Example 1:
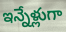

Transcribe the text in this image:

ఇన్నేళ్లుగా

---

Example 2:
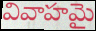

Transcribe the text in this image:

వివాహమై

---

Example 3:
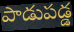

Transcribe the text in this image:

పాడుపడ్డ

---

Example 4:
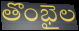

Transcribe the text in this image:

తొంభైల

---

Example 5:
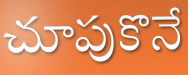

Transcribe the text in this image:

చూపుకొనే